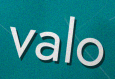
valo